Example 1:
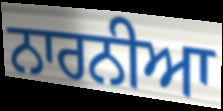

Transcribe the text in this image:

ਨਾਰਨੀਆ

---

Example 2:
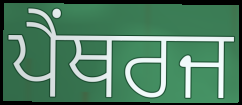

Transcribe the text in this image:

ਪੈਂਥਰਜ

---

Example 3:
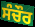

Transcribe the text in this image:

ਸੰਚੌਰ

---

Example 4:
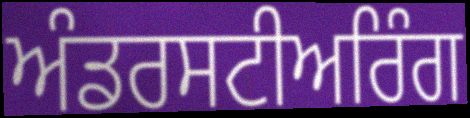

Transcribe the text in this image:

ਅੰਡਰਸਟੀਅਰਿੰਗ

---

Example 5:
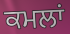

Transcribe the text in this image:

ਕਮਲਾਂ